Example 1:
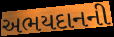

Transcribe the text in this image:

અભયદાનની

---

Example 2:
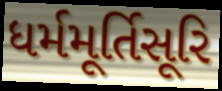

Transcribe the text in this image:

ધર્મમૂર્તિસૂરિ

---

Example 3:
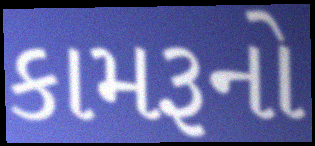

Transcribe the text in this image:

કામરૂનો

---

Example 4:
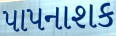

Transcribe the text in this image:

પાપનાશક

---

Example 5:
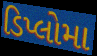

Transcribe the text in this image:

ડિપ્લોમા